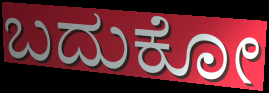
ಬದುಕೋ